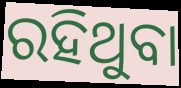
ରହିଥୁବା